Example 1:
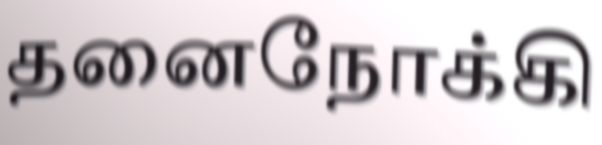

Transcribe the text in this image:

தனைநோக்கி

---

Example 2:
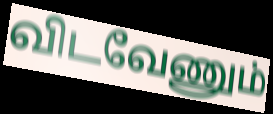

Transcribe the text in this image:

விடவேணும்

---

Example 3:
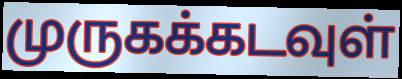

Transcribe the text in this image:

முருகக்கடவுள்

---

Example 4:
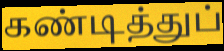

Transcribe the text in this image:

கண்டித்துப்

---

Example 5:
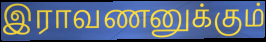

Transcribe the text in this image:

இராவணனுக்கும்